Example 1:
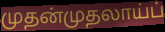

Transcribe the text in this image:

முதன்முதலாய்ப்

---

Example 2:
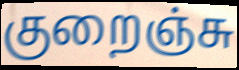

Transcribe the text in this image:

குறைஞ்சு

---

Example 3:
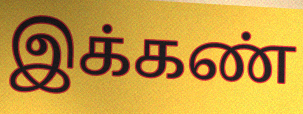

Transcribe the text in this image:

இக்கண்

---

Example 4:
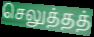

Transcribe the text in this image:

செலுத்தத்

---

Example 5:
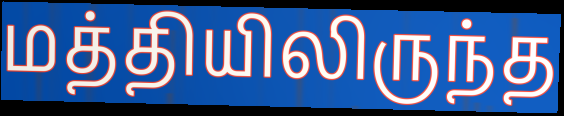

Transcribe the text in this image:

மத்தியிலிருந்த